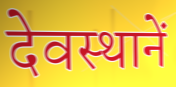
देवस्थानें